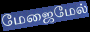
மேஜைமேல்